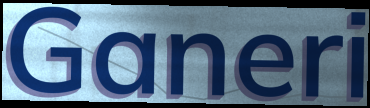
Ganeri